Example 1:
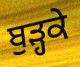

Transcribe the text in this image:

ਬੁੜ੍ਹਕੇ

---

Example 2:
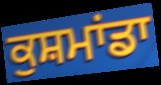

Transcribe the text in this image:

ਕੁਸ਼ਮਾਂਡਾ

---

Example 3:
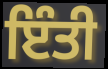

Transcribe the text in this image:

ਇੰਤੀ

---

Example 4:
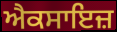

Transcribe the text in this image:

ਐਕਸਾਇਜ਼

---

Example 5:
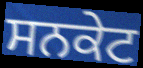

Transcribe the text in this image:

ਸਨਕੇਟ